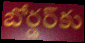
బోర్డర్‌కు